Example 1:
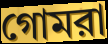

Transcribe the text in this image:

গোমরা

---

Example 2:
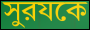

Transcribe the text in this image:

সুরযকে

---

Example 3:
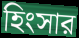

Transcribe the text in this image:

হিংসার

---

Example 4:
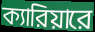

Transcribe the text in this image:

ক্যারিয়ারে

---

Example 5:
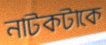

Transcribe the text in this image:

নাটকটাকে